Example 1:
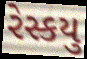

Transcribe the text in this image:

રેસ્કયુ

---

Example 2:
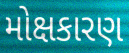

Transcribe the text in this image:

મોક્ષકારણ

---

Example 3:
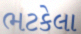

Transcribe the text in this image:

ભટકેલા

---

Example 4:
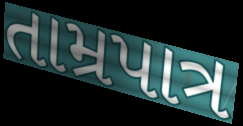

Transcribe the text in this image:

તામ્રપાત્ર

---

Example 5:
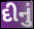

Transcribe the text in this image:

દીનું